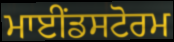
ਮਾਈਂਡਸਟੋਰਮ